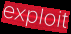
exploit